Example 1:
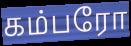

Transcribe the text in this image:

கம்பரோ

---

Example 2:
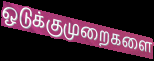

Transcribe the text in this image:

ஒடுக்குமுறைகளை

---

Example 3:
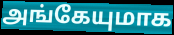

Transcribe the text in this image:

அங்கேயுமாக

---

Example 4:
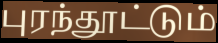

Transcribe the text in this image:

புரந்தூட்டும்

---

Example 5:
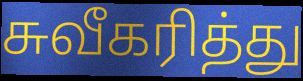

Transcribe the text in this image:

சுவீகரித்து